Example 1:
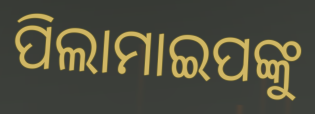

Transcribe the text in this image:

ପିଲାମାଇପଙ୍କୁ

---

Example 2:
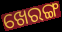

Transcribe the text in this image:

ଖେରଙ୍ଗ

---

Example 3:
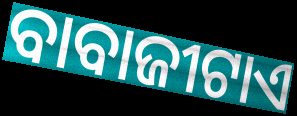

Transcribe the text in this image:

ବାବାଜୀଟାଏ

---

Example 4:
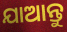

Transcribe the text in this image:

ଯାଆନ୍ତୁ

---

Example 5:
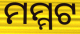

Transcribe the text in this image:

ମମ୍ମଟ